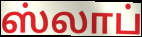
ஸ்லாப்